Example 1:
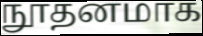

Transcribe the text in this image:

நூதனமாக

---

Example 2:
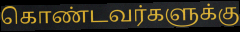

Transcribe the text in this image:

கொண்டவர்களுக்கு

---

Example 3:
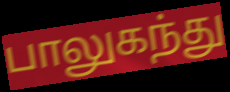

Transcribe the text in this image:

பாலுகந்து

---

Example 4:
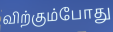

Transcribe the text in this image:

விற்கும்போது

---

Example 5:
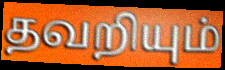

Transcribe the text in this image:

தவறியும்